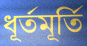
ধূর্তমূর্তি